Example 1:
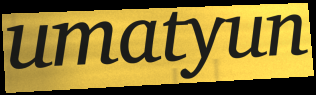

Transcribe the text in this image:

umatyun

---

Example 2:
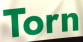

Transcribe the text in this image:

Torn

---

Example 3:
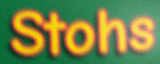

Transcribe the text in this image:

Stohs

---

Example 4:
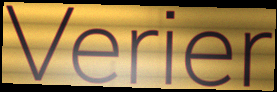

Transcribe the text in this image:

Verier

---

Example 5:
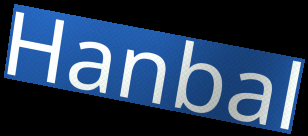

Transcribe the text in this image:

Hanbal